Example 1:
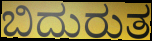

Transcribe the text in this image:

ಬಿದುರುತ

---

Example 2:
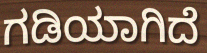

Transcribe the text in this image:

ಗಡಿಯಾಗಿದೆ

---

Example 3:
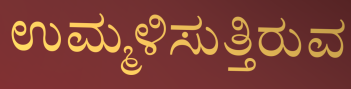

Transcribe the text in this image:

ಉಮ್ಮಳಿಸುತ್ತಿರುವ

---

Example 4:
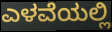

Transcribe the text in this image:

ಎಳವೆಯಲ್ಲಿ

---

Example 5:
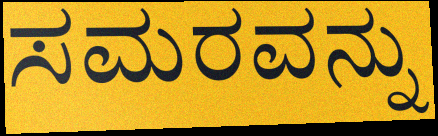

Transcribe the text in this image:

ಸಮರವನ್ನು